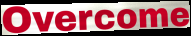
Overcome